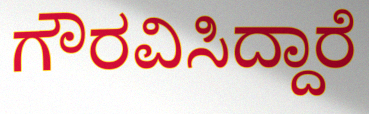
ಗೌರವಿಸಿದ್ದಾರೆ